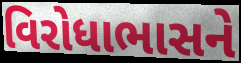
વિરોધાભાસને